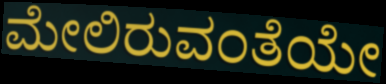
ಮೇಲಿರುವಂತೆಯೇ